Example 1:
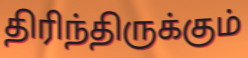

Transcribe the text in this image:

திரிந்திருக்கும்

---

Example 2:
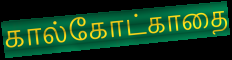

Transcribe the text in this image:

கால்கோட்காதை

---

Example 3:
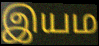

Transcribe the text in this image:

இயம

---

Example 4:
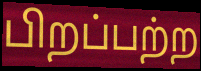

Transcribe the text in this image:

பிறப்பற்ற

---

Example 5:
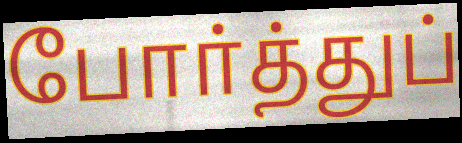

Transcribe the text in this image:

போர்த்துப்